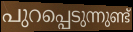
പുറപ്പെടുന്നുണ്ട്